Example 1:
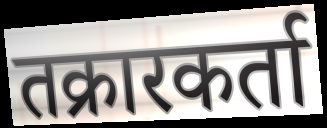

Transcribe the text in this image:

तक्रारकर्ता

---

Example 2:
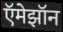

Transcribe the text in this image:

ऍमेझॉन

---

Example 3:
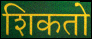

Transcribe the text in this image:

शिकतो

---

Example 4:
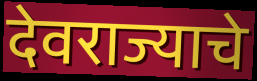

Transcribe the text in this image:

देवराज्याचे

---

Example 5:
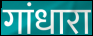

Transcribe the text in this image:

गांधारा